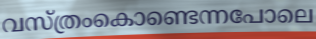
വസ്ത്രംകൊണ്ടെന്നപോലെ